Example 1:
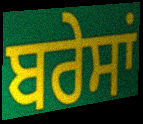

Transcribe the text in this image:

ਬਰੇਸਾਂ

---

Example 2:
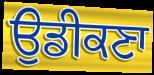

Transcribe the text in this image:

ਉਡੀਕਣਾ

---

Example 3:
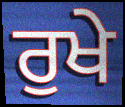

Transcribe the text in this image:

ਰੁਖੇ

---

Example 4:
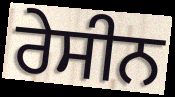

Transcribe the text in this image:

ਰੇਸੀਨ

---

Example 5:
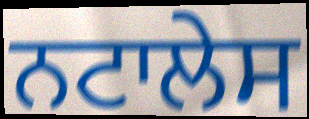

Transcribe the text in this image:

ਨਟਾਲੇਸ